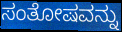
ಸಂತೋಷವನ್ನು